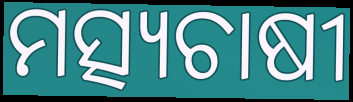
ମତ୍ସ୍ୟଚାଷୀ